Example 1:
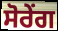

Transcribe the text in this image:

ਸੋਰੇਂਗ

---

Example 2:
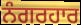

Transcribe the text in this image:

ਨੰਗਰਹਾਰ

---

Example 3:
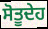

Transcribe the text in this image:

ਸੋਤੂਦੇਹ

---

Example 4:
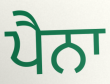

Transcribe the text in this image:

ਪੈਨਾ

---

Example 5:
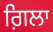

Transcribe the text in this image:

ਗ਼ਿਲਾ